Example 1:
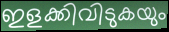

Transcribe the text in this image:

ഇളക്കിവിടുകയും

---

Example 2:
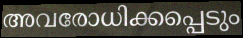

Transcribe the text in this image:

അവരോധിക്കപ്പെടും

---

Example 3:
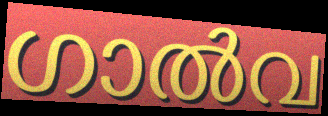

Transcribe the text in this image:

ഗാൽവ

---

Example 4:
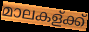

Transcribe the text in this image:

മാലകള്ക്ക്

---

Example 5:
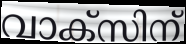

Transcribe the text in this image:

വാക്സിന്